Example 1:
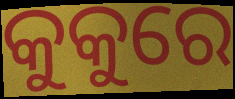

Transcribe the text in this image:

କୁକୁରେ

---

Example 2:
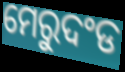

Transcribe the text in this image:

ମେରୁଦଂଡ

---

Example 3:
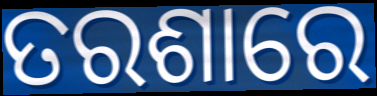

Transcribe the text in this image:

ତରଶାରେ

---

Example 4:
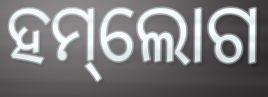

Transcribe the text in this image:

ହମ୍‌ଲୋଗ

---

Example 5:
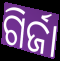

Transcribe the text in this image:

ଗିର୍ଜା